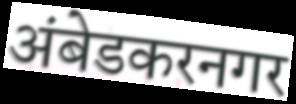
अंबेडकरनगर